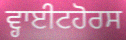
ਵ੍ਹਾਈਟਹੋਰਸ